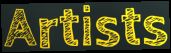
Artists